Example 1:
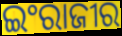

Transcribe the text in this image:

ଇଂରାଜୀର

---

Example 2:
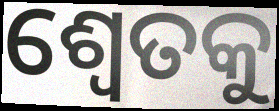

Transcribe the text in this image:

ଶ୍ଵେତକୁ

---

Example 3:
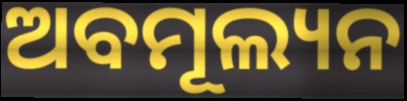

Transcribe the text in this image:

ଅବମୂଲ୍ୟନ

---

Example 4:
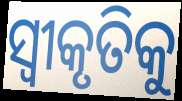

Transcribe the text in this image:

ସ୍ୱୀକୃତିକୁ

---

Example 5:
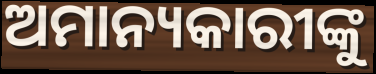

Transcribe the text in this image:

ଅମାନ୍ୟକାରୀଙ୍କୁ